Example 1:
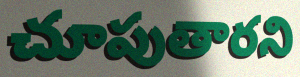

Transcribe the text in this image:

చూపుతారని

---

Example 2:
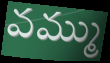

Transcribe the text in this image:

వమ్ము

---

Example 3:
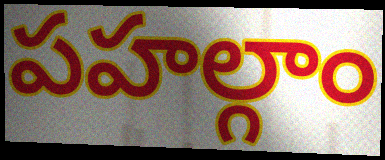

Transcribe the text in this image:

పహల్గాం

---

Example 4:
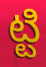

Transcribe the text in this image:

ట్టి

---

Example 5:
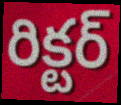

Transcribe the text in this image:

రిక్టర్